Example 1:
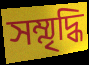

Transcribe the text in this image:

সম্মৃদ্ধি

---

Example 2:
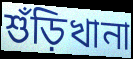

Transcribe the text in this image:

শুঁড়িখানা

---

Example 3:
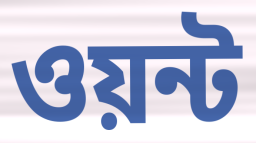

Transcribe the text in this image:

ওয়ন্ট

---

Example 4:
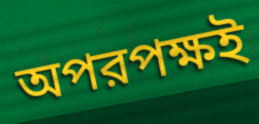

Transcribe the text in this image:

অপরপক্ষই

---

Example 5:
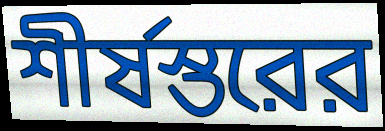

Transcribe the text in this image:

শীর্ষস্তরের